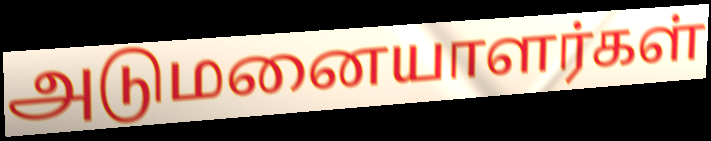
அடுமனையாளர்கள்